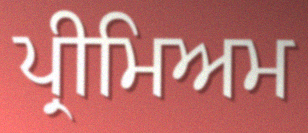
ਪ੍ਰੀਮਿਅਮ